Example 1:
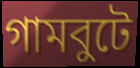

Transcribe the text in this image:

গামবুটে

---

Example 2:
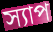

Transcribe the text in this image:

স্যাপ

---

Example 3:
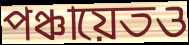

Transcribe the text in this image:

পঞ্চায়েতও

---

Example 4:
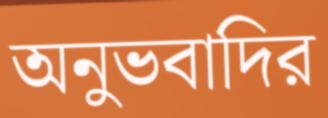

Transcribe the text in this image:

অনুভবাদির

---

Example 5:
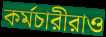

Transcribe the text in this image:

কর্মচারীরাও